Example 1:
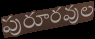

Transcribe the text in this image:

పురూరవుల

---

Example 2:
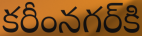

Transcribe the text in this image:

కరీంనగర్‌కి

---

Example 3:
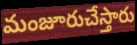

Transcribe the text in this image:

మంజూరుచేస్తారు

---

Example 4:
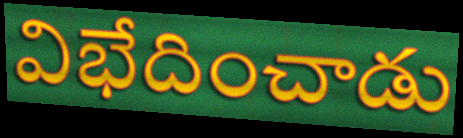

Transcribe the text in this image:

విభేదించాడు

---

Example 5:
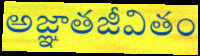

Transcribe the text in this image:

అజ్ఞాతజీవితం